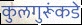
कुलगुरूंकडे